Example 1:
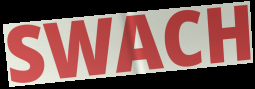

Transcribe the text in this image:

SWACH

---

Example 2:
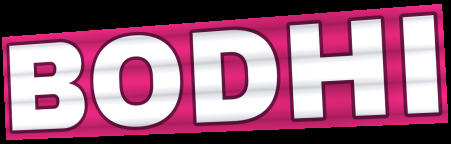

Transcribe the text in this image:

BODHI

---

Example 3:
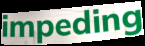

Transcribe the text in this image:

impeding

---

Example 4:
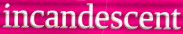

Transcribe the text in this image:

incandescent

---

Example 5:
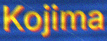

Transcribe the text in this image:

Kojima